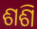
ଶଶି